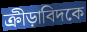
ক্রীড়াবিদকে